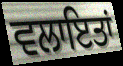
ਵਲਾਇਤਾਂ